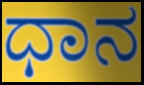
ಧಾನ